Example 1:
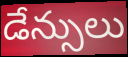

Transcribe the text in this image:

డేన్సులు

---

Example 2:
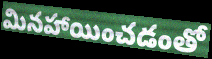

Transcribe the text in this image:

మినహాయించడంతో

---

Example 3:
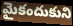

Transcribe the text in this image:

మైకందుకుని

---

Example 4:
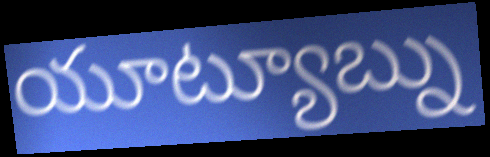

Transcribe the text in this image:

యూట్యూబ్ను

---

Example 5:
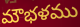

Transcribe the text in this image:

మౌభళము